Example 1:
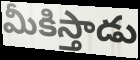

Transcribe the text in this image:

మీకిస్తాడు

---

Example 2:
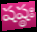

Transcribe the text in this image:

షష్ఠః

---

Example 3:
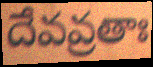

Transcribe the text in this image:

దేవవ్రతాః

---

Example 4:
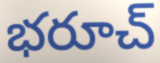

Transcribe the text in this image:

భరూచ్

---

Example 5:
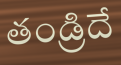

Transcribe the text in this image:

తండ్రిదే